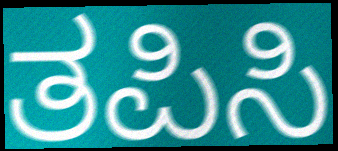
ತಪಿಸಿ